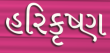
હરિકૃષ્ણ